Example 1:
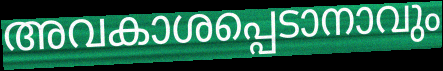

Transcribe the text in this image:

അവകാശപ്പെടാനാവും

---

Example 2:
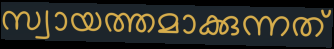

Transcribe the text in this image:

സ്വായത്തമാക്കുന്നത്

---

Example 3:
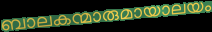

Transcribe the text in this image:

ബാലകന്മാരുമായാലയം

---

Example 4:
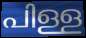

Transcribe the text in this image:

പിള്ള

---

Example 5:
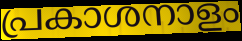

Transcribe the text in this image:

പ്രകാശനാളം